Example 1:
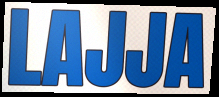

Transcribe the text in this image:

LAJJA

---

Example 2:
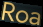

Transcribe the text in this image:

Roa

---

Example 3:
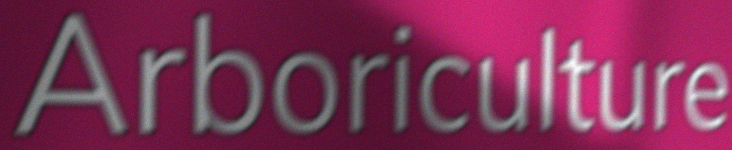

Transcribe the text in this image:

Arboriculture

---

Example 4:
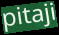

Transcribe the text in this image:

pitaji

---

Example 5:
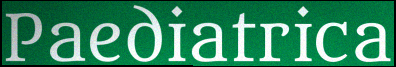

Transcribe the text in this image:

Paediatrica